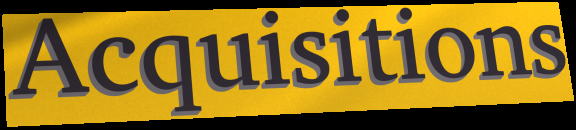
Acquisitions